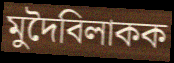
মুদৈবিলাকক